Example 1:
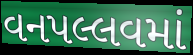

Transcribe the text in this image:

વનપલ્લવમાં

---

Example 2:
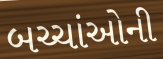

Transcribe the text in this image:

બચ્ચાંઓની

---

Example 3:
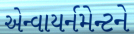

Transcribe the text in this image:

એન્વાયર્નમેન્ટને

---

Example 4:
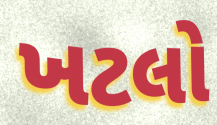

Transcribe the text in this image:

ખટલો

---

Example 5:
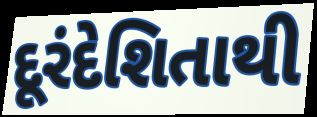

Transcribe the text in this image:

દૂરંદેશિતાથી